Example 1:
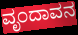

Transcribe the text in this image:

ವೃಂದಾವನ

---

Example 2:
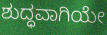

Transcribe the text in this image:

ಶುದ್ಧವಾಗಿಯೇ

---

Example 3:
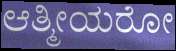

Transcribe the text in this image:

ಆತ್ಮೀಯರೋ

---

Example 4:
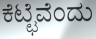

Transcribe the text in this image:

ಕೆಟ್ಟೆವೆಂದು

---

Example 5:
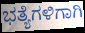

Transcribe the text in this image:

ಭತ್ಯೆಗಳಿಗಾಗಿ